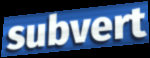
subvert